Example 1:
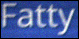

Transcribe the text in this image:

Fatty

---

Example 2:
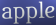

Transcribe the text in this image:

apple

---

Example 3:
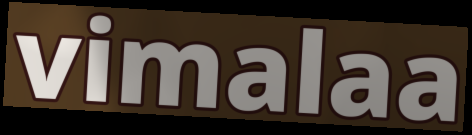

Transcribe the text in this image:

vimalaa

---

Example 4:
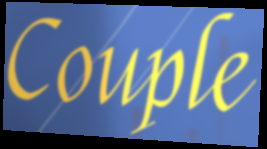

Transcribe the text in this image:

Couple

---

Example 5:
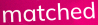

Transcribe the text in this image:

matched